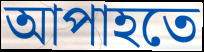
আপাহতে